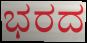
ಭರದ